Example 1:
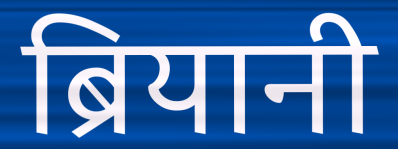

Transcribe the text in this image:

ब्रियानी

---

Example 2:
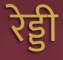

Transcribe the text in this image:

रेड्डी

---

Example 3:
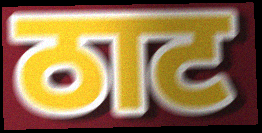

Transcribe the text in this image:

ठाट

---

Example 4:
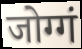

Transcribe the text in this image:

जोग्गं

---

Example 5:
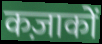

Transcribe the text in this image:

कज़ाकों